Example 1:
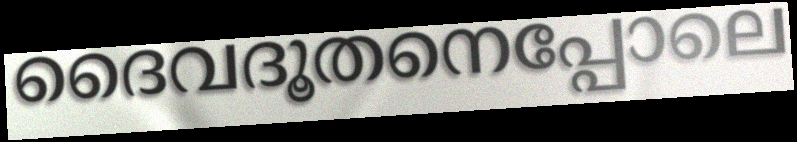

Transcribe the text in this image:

ദൈവദൂതനെപ്പോലെ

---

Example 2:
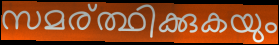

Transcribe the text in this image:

സമര്ത്ഥിക്കുകയും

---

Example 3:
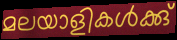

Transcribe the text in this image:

മലയാളികൾക്കു്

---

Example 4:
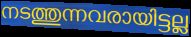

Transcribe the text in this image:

നടത്തുന്നവരായിട്ടല്ല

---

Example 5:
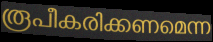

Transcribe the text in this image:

രൂപീകരിക്കണമെന്ന